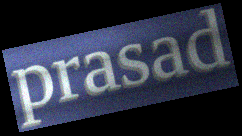
prasad